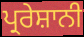
ਪ੍ਰਰੇਸ਼ਾਨੀ